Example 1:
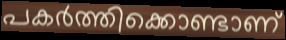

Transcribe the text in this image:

പകർത്തിക്കൊണ്ടാണ്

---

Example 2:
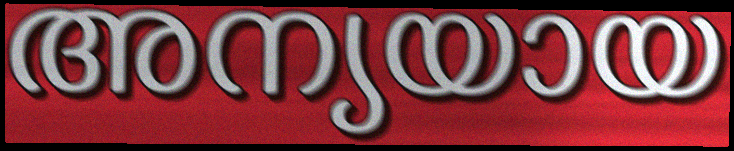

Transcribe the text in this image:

അന്യയായ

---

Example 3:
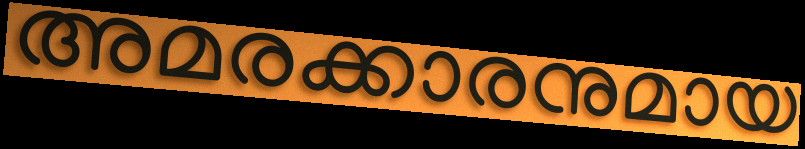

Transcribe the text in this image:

അമരക്കാരനുമായ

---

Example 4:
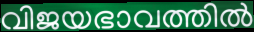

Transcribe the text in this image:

വിജയഭാവത്തിൽ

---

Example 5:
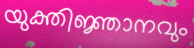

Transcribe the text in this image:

യുക്തിജ്ഞാനവും